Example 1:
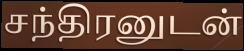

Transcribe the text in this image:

சந்திரனுடன்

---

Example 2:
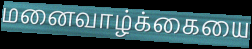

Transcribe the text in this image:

மனைவாழ்க்கையை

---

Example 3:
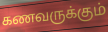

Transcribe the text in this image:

கணவருக்கும்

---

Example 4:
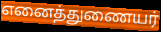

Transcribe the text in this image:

எனைத்துணையர்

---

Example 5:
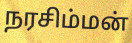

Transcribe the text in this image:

நரசிம்மன்